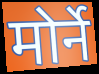
मोर्ने